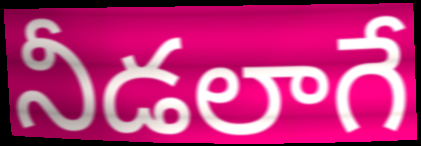
నీడలాగే